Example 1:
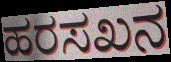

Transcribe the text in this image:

ಹರಸಖನ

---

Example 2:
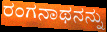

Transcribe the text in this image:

ರಂಗನಾಥನನ್ನು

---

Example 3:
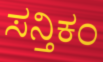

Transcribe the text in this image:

ಸನ್ತಿಕಂ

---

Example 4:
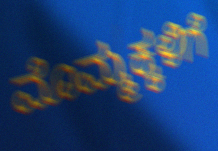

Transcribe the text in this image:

ಮೊಮ್ಮಕ್ಕಳಿಗೆ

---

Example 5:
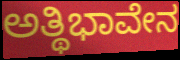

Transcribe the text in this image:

ಅತ್ಥಿಭಾವೇನ